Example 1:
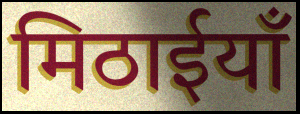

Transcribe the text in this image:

मिठाईयाँ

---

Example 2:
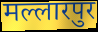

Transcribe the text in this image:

मल्लारपुर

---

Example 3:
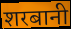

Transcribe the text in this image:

शरबानी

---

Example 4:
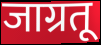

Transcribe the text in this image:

जाग्रतू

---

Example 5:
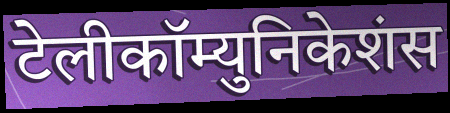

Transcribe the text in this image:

टेलीकॉम्युनिकेशंस